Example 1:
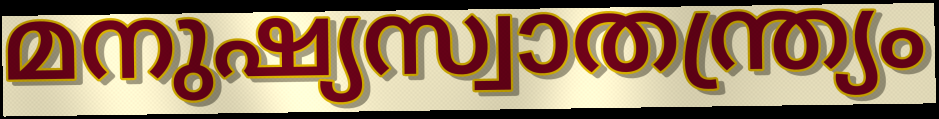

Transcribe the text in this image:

മനുഷ്യസ്വാതന്ത്ര്യം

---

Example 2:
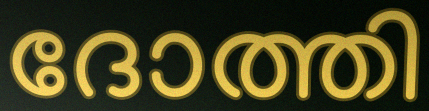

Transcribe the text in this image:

ദോത്തി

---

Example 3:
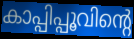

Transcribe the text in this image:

കാപ്പിപ്പൂവിന്റെ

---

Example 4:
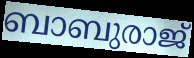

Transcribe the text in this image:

ബാബുരാജ്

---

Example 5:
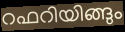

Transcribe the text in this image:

റഫറിയിങ്ങും